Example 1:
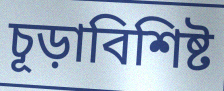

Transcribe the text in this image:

চূড়াবিশিষ্ট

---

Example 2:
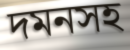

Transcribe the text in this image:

দমনসহ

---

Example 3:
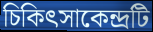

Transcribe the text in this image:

চিকিৎসাকেন্দ্রটি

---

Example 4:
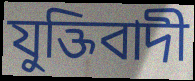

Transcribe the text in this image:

যুক্তিবাদী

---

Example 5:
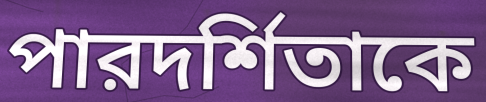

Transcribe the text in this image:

পারদর্শিতাকে